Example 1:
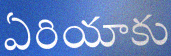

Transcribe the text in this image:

ఏరియాకు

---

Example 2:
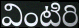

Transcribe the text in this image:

వింటిరి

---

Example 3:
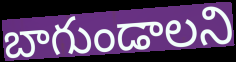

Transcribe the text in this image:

బాగుండాలని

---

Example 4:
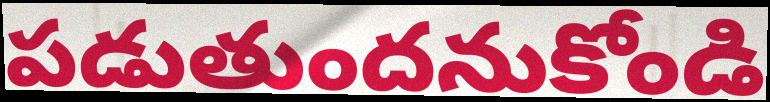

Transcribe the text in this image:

పడుతుందనుకోండి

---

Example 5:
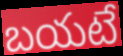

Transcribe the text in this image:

బయటే